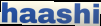
haashi